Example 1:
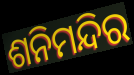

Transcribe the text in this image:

ଶନିମନ୍ଦିର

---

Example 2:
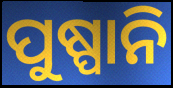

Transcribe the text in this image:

ପୁଷ୍ପାନି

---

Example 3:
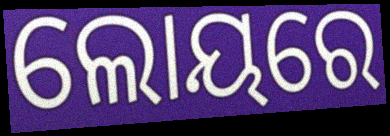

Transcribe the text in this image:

ଲୋୟରେ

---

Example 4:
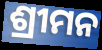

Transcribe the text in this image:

ଶ୍ରୀମନ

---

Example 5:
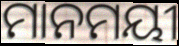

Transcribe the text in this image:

ମାନମୟୀ